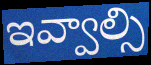
ఇవ్వాల్సి